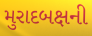
મુરાદબક્ષની